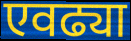
एवढ्या